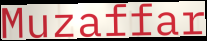
Muzaffar